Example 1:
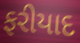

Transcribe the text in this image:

ફરીયાદ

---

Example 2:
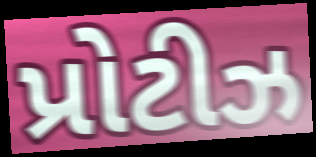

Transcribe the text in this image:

પ્રોટીઝ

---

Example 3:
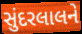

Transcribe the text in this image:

સુંદરલાલને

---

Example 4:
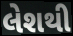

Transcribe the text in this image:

લેશથી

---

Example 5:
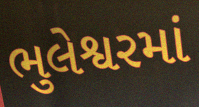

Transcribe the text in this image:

ભુલેશ્વરમાં